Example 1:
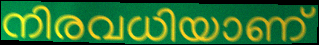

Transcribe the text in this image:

നിരവധിയാണ്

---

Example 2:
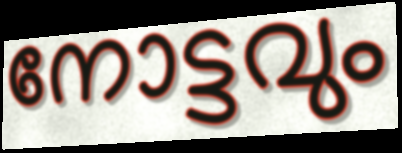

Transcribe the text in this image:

നോട്ടവും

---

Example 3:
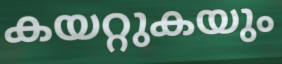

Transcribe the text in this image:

കയറ്റുകയും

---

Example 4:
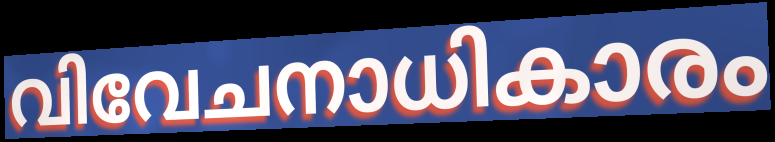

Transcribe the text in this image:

വിവേചനാധികാരം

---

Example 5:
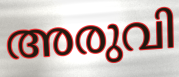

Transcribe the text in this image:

അരുവി